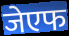
जेएफ